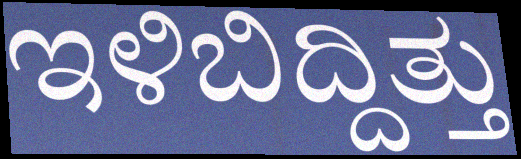
ಇಳಿಬಿದ್ದಿತ್ತು